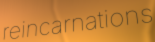
reincarnations